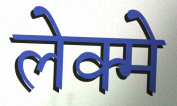
लेक्मे